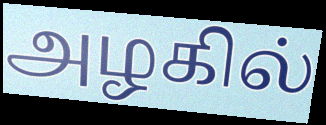
அழகில்